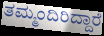
ತಮ್ಮಂದಿರಿದ್ದಾರೆ